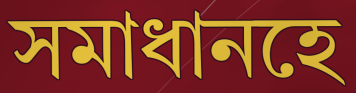
সমাধানহে